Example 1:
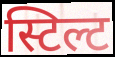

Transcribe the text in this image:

स्टिल्ट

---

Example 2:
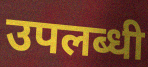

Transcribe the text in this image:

उपलब्धी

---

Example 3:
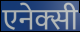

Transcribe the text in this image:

एनेक्‍सी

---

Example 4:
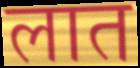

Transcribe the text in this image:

लात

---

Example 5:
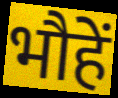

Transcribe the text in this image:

भौहें